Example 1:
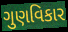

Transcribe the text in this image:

ગુણવિકાર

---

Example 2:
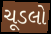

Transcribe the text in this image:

ચૂડલો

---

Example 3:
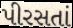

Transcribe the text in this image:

પીરસતાં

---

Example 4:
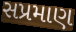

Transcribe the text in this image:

સપ્રમાણ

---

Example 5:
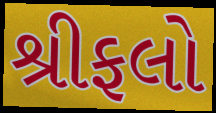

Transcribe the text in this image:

શ્રીફલો